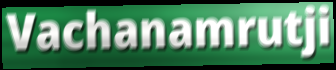
Vachanamrutji